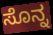
ಸೊನ್ನ